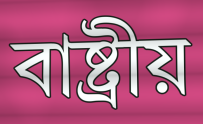
বাষ্ট্রীয়